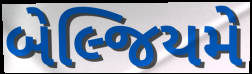
બેલ્જિયમે